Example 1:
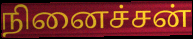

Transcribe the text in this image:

நினைச்சன்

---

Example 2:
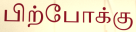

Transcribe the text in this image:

பிற்போக்கு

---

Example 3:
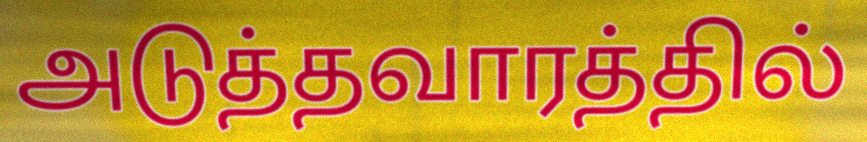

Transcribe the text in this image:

அடுத்தவாரத்தில்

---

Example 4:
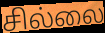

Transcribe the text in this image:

சில்லை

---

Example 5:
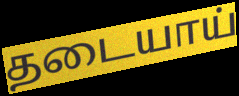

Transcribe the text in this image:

தடையாய்